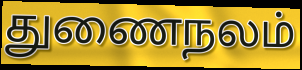
துணைநலம்